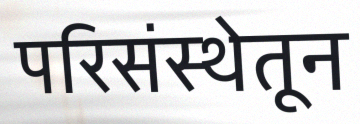
परिसंस्थेतून